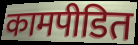
कामपीडित